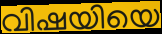
വിഷയിയെ